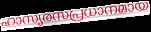
ഹാസ്യരസപ്രധാനമായ